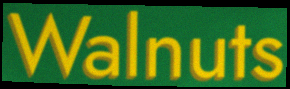
Walnuts